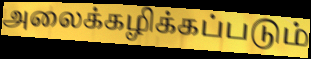
அலைக்கழிக்கப்படும்